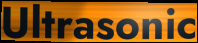
Ultrasonic